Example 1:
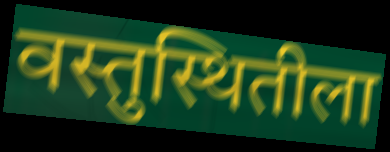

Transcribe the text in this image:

वस्तुस्थितीला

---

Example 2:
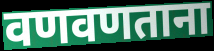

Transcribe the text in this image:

वणवणताना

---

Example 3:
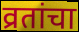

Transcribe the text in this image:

व्रतांचा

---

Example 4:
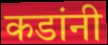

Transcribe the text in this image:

कडांनी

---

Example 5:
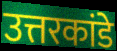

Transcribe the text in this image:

उत्तरकांडे